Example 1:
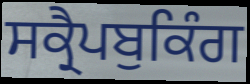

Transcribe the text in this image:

ਸਕ੍ਰੈਪਬੁਕਿੰਗ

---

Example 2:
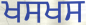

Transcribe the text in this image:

ਖਸਖਸ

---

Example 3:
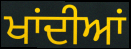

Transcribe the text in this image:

ਖਾਂਦੀਆਂ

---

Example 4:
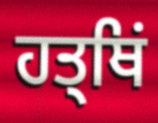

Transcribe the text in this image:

ਹਤ੍ਥਿਂ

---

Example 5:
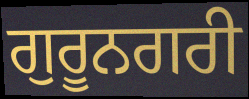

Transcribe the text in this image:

ਗੁਰੂਨਗਰੀ